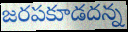
జరపకూడదన్న